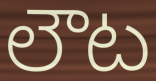
లౌట